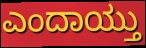
ಎಂದಾಯ್ತು